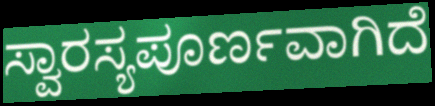
ಸ್ವಾರಸ್ಯಪೂರ್ಣವಾಗಿದೆ